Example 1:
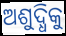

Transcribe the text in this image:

ଅଶୁଦ୍ଧିକୁ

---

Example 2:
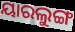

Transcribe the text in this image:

ୟାରଲୁଙ୍ଗ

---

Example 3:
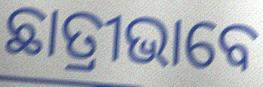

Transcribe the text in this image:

ଛାତ୍ରୀଭାବେ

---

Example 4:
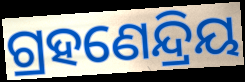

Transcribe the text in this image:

ଗ୍ରହଣେନ୍ଦ୍ରିୟ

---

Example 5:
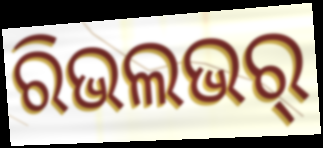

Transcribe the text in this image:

ରିଭଲଭର୍